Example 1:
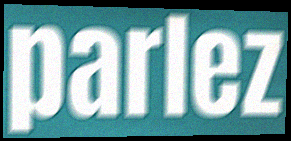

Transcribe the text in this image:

parlez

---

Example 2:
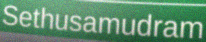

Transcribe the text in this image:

Sethusamudram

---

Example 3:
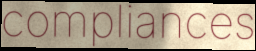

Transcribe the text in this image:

compliances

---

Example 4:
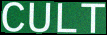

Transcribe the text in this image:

CULT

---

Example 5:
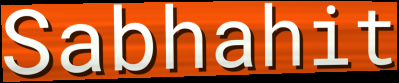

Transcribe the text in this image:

Sabhahit